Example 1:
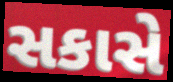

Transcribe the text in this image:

સકાસે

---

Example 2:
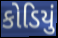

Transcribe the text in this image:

કોડિયું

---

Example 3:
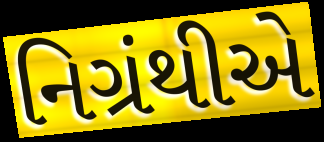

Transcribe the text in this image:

નિગ્રંથીએ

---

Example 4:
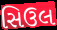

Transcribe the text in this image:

સિઉલ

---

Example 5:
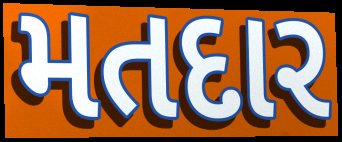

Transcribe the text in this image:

મતદાર